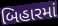
બિહારમાં